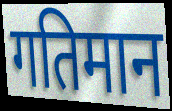
गतिमान